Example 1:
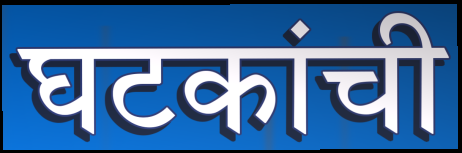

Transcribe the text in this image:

घटकांची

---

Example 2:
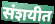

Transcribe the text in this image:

संशयीत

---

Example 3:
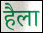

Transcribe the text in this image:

हैला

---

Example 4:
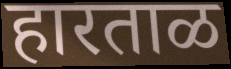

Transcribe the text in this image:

हारताळ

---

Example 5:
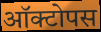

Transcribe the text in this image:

ऑक्टोपस